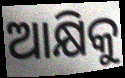
ଆକ୍ଷିକୁ